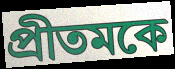
প্রীতমকে